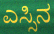
ಎಸ್ಸಿನ